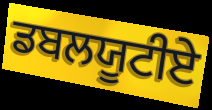
ਡਬਲਯੂਟੀਏ